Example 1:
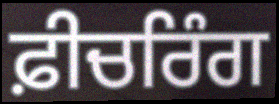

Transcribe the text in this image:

ਫ਼ੀਚਰਿੰਗ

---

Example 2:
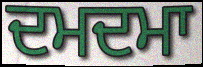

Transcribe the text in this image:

ਦਮਦਮਾ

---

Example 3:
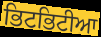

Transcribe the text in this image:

ਭਿਟਭਿਟੀਆ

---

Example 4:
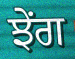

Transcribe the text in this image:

ਝੇਂਗ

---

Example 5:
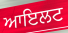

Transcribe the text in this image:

ਆਇਲਟ